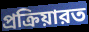
প্রক্রিয়ারত